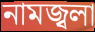
নামজ্বলা